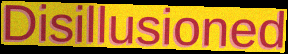
Disillusioned